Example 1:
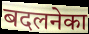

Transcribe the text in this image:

बदलनेका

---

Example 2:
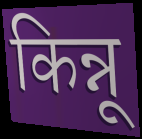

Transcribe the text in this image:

किन्नू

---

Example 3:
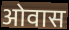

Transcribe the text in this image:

ओवास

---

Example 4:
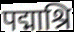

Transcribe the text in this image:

पद्माश्रि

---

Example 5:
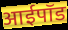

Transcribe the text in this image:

आईपॉड